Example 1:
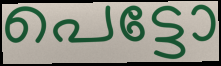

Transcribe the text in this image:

പെട്ടോ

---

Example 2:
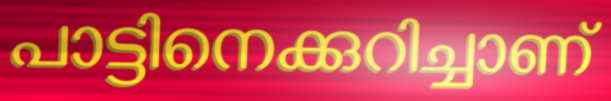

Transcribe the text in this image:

പാട്ടിനെക്കുറിച്ചാണ്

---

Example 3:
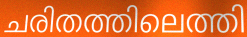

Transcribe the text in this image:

ചരിതത്തിലെത്തി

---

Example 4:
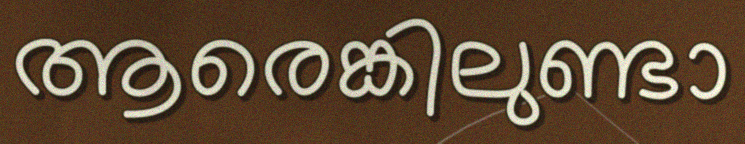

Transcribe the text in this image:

ആരെങ്കിലുണ്ടാ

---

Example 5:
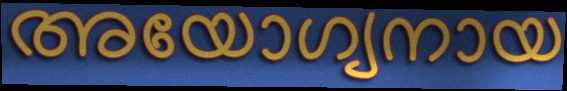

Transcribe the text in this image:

അയോഗ്യനായ